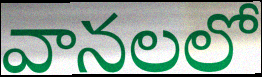
వానలలో